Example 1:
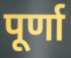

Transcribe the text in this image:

पूर्णा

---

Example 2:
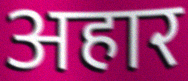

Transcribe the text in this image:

अहार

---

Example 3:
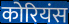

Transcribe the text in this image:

कोरियंस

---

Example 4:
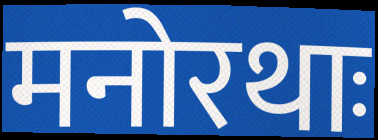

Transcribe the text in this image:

मनोरथाः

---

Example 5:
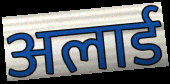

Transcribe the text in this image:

अलार्ड